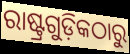
ରାଷ୍ଟ୍ରଗୁଡ଼ିକଠାରୁ